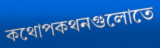
কথোপকথনগুলোতে